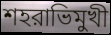
শহরাভিমুখী